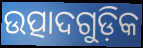
ଉତ୍ପାଦଗୁଡ଼ିକ